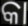
କା